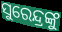
ସୁରେନ୍ଦ୍ରଙ୍କୁ